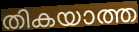
തികയാത്ത